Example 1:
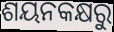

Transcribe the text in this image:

ଶୟନକକ୍ଷରୁ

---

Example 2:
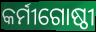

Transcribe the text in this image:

କର୍ମୀଗୋଷ୍ଠୀ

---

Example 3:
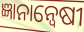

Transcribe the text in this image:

ଜ୍ଞାନାନ୍ୱେଷୀ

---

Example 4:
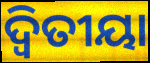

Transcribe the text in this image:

ଦ୍ଵିତୀୟା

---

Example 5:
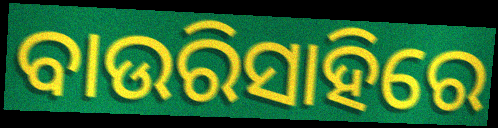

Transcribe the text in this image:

ବାଉରିସାହିରେ